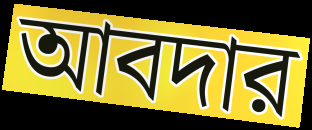
আবদার